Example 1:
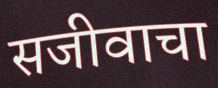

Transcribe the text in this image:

सजीवाचा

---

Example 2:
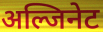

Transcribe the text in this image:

अल्जिनेट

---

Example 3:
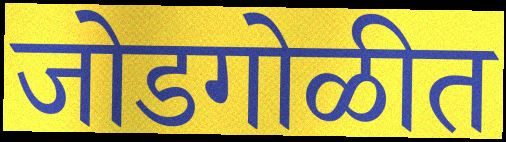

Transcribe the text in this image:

जोडगोळीत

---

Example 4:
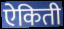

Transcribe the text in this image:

ऐकिती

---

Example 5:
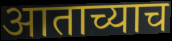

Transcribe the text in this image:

आताच्याच